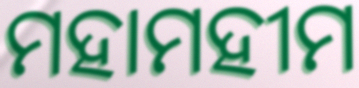
ମହାମହୀମ